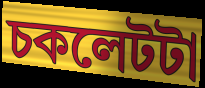
চকলেটটা